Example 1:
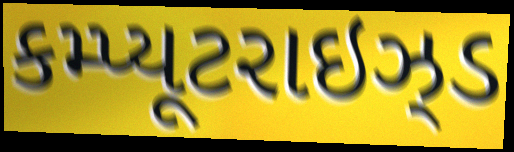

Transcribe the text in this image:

કમ્પ્યૂટરાઇઝ્ડ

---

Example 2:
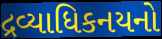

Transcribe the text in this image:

દ્રવ્યાધિકનયનો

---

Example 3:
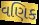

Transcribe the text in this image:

વણિક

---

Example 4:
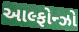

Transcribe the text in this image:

આલ્ફોન્ઝો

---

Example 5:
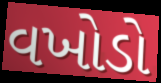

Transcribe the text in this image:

વખોડો